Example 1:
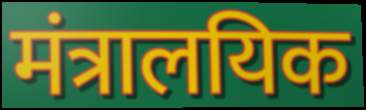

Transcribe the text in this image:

मंत्रालयिक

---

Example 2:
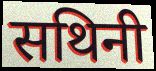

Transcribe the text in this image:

सथिनी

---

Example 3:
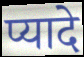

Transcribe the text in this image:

प्यादे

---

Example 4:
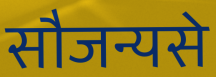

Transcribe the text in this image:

सौजन्यसे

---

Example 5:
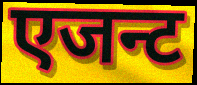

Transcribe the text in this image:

एजन्ट